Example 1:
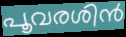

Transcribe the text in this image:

പൂവരശിൻ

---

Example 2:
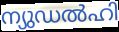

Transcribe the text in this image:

ന്യുഡൽഹി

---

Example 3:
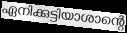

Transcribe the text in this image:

ഏനിക്കുട്ടിയാശാന്റെ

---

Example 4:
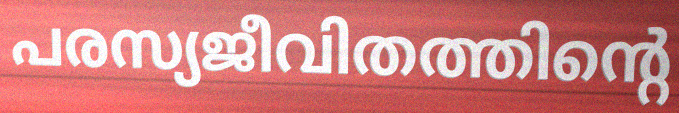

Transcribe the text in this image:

പരസ്യജീവിതത്തിന്റെ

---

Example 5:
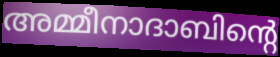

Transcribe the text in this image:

അമ്മീനാദാബിന്റെ